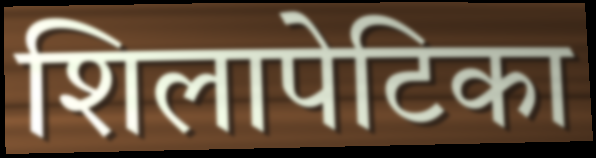
शिलापेटिका